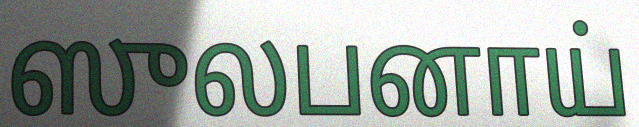
ஸுலபனாய்